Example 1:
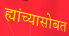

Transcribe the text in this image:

ह्यांच्यासोबत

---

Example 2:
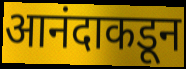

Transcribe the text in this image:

आनंदाकडून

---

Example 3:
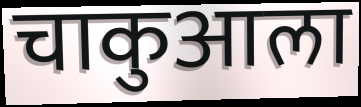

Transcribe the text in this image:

चाकुआला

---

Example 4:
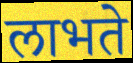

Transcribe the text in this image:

लाभते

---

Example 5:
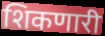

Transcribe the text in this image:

शिकणारी